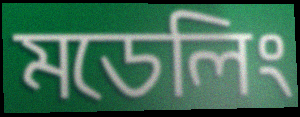
মডেলিং